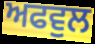
ਅਫਵੁਲ